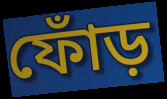
ফোঁড়